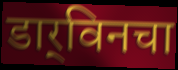
डार्विनचा